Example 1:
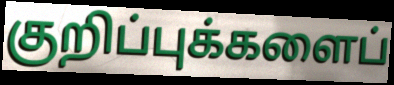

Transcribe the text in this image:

குறிப்புக்களைப்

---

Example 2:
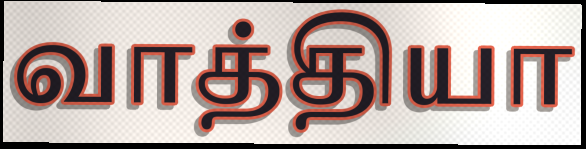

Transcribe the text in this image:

வாத்தியா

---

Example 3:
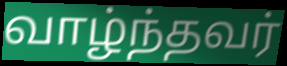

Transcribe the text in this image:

வாழ்ந்தவர்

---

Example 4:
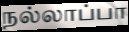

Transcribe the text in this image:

நல்லாப்பா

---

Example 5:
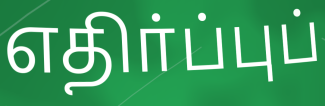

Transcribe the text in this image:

எதிர்ப்புப்